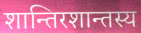
शान्तिरशान्तस्य